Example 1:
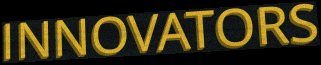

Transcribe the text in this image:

INNOVATORS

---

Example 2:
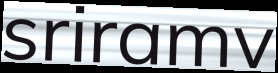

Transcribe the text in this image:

sriramv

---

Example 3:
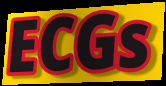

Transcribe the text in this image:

ECGs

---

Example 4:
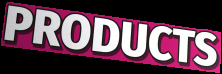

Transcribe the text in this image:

PRODUCTS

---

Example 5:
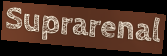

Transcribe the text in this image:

Suprarenal